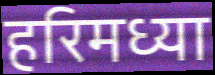
हरिमध्या